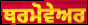
ਥਰਮੋਵੇਅਰ